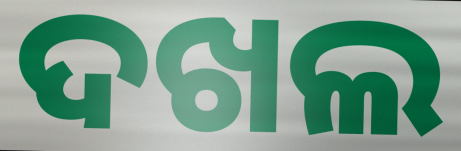
ଦଖଲ